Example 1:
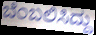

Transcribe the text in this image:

ಬೆಂಬಲಿಸಿದ್ದು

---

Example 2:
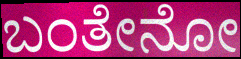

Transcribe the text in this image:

ಬಂತೇನೋ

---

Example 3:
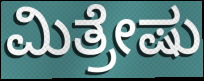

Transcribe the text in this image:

ಮಿತ್ರೇಷು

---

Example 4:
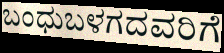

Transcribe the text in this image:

ಬಂಧುಬಳಗದವರಿಗೆ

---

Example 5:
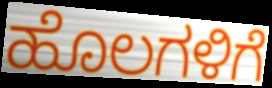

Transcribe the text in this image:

ಹೊಲಗಳಿಗೆ